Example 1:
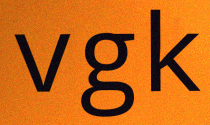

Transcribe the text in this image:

vgk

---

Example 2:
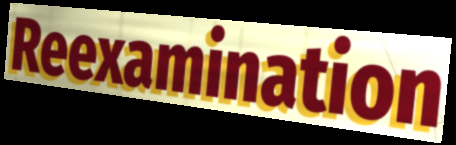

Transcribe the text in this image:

Reexamination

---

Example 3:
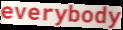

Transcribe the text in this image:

everybody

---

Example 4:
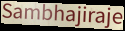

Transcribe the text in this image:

Sambhajiraje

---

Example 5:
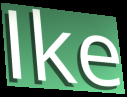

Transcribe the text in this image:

Ike